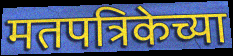
मतपत्रिकेच्या